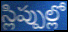
స్లిప్పుల్లో